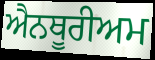
ਐਨਥੂਰੀਅਮ